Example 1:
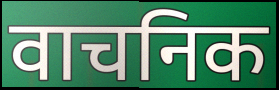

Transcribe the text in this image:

वाचनिक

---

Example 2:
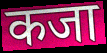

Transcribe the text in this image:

कजा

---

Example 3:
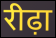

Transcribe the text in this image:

रीढ़ा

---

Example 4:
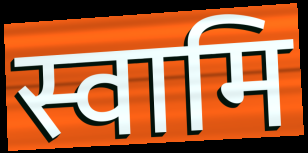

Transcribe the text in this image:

स्वामि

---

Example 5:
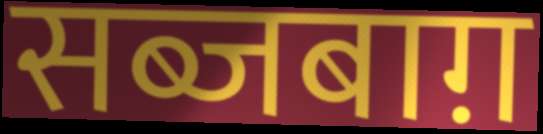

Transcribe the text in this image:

सब्जबाग़